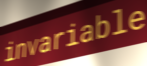
invariable